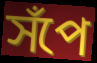
সঁপে